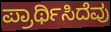
ಪ್ರಾರ್ಥಿಸಿದೆವು